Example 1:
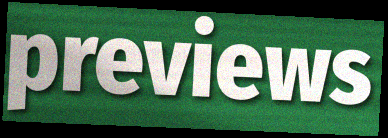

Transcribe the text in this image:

previews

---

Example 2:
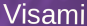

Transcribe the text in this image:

Visami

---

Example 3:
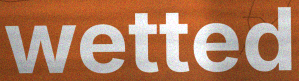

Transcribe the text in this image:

wetted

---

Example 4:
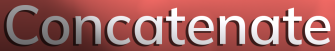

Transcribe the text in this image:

Concatenate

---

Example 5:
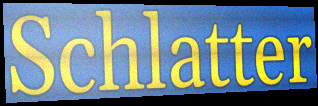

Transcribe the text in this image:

Schlatter